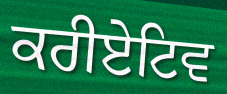
ਕਰੀਏਟਿਵ